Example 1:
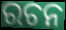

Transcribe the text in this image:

ରଚନ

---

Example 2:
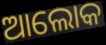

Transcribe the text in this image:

ଆଲୋକ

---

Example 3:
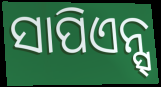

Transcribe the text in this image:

ସାପିଏନ୍ସ୍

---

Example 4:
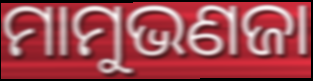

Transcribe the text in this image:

ମାମୁଭଣଜା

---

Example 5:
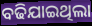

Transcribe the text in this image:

ବଢିଯାଇଥିଲା